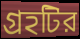
গ্রহটির